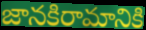
జానకిరామానికి